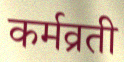
कर्मव्रती